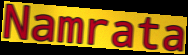
Namrata